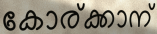
കോര്ക്കാന്